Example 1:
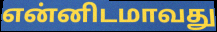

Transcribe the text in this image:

என்னிடமாவது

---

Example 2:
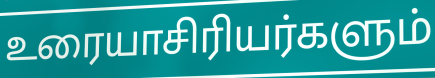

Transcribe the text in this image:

உரையாசிரியர்களும்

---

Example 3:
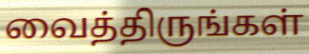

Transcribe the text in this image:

வைத்திருங்கள்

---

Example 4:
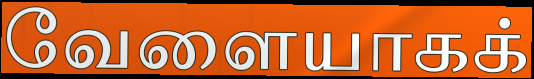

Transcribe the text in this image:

வேளையாகக்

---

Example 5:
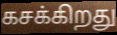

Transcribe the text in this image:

கசக்கிறது